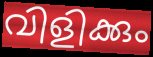
വിളിക്കും